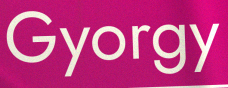
Gyorgy